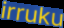
irruku